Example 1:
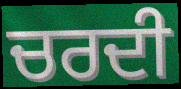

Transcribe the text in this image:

ਚਰਦੀ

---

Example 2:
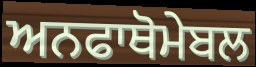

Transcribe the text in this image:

ਅਨਫਾਥੋਮੇਬਲ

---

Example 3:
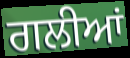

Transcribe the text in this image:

ਗਲੀਆਂ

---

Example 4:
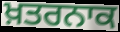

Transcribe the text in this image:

ਖ਼ਤਰਨਾਕ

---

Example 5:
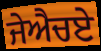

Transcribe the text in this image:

ਜੇਐਚਏ